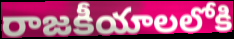
రాజకీయాలలోకి